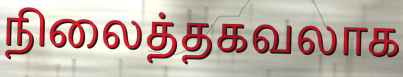
நிலைத்தகவலாக